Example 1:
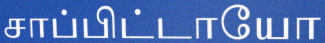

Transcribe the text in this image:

சாப்பிட்டாயோ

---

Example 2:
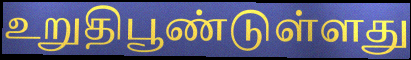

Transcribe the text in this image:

உறுதிபூண்டுள்ளது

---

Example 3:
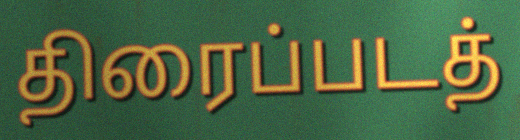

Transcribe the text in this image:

திரைப்படத்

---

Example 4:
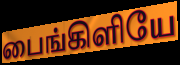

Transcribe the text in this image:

பைங்கிளியே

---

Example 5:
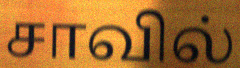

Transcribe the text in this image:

சாவில்